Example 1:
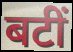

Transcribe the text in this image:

बटीं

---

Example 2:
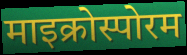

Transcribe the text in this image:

माइक्रोस्पोरम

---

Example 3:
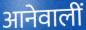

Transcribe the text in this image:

आनेवालीं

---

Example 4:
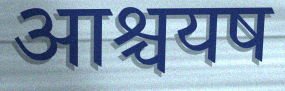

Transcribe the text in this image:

आश्चयष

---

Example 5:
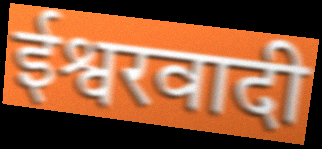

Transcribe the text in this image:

ईश्वरवादी